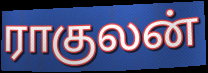
ராகுலன்